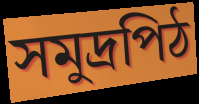
সমুদ্রপিঠ